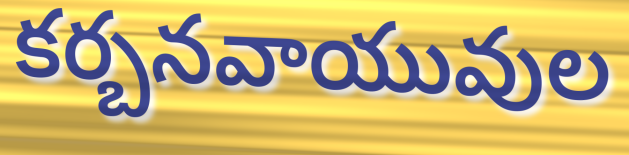
కర్బనవాయువుల